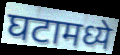
घटामध्ये